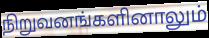
நிறுவனங்களினாலும்